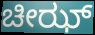
ಚೀಝ್